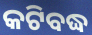
କଟିବଦ୍ଧ